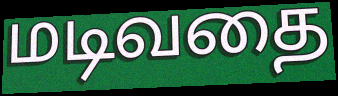
மடிவதை